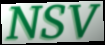
NSV